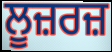
ਲੂਜ਼ਰਜ਼